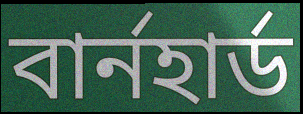
বার্নহার্ড